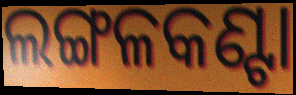
ଲଙ୍ଗଳକଣ୍ଟା